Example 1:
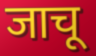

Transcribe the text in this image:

जाचू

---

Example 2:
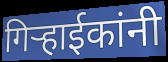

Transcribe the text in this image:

गिऱ्हाईकांनी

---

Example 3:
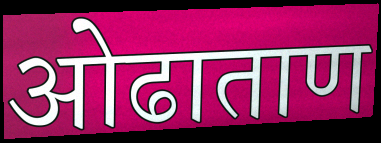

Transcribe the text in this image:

ओढाताण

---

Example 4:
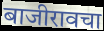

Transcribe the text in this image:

बाजीरावचा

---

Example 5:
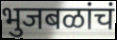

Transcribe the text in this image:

भुजबळांचं